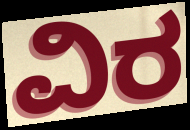
ವಿರ